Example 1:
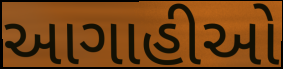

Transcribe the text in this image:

આગાહીઓ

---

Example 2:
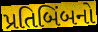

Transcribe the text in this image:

પ્રતિબિંબનો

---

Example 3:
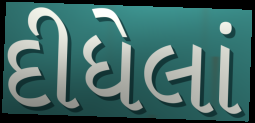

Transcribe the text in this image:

દીધેલાં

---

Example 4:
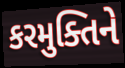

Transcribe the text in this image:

કરમુક્તિને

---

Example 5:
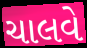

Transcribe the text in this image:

ચાલવે